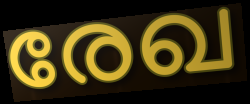
രേഖ